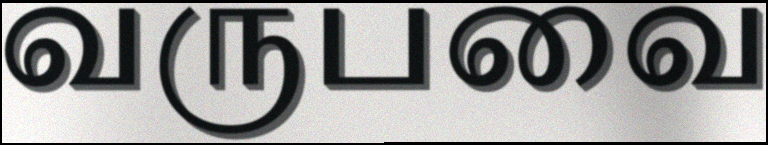
வருபவை